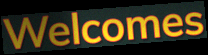
Welcomes